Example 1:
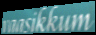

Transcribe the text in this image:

vaasikkum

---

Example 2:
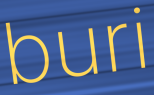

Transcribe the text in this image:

buri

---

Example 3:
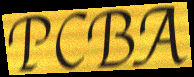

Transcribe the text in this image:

PCBA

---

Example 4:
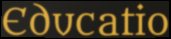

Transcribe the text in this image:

Educatio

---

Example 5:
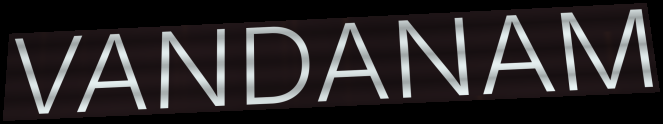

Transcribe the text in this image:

VANDANAM